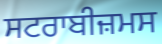
ਸਟਰਾਬੀਜ਼ਮਸ